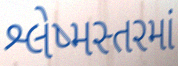
શ્લેષ્મસ્તરમાં